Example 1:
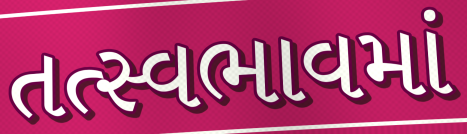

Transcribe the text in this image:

તત્સ્વભાવમાં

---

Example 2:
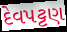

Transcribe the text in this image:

દેવપટ્ટણ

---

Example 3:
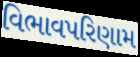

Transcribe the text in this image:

વિભાવપરિણામ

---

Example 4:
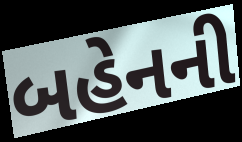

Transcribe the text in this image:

બહેનની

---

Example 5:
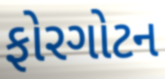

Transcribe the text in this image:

ફોરગોટન